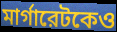
মার্গারেটকেও